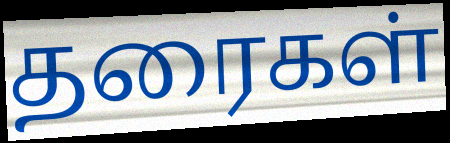
தரைகள்